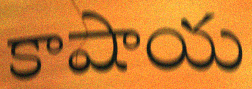
కాషాయ